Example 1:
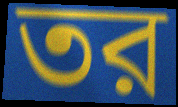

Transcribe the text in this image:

তর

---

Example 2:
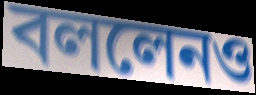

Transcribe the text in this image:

বললেনও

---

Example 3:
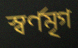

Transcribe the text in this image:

স্বর্ণমৃগ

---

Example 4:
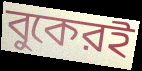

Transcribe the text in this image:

বুকেরই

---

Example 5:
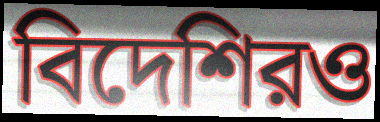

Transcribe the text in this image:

বিদেশিরও